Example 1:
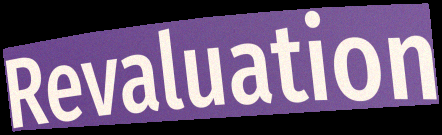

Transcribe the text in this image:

Revaluation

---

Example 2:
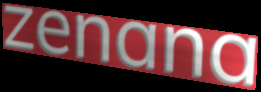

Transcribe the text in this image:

zenana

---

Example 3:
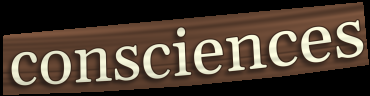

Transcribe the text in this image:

consciences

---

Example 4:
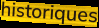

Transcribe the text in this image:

historiques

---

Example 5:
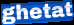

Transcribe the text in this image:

ghetat